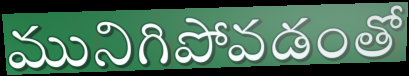
మునిగిపోవడంతో